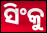
ସିଂକୁ